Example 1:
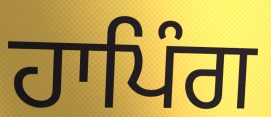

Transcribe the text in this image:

ਹਾਪਿੰਗ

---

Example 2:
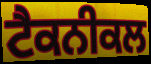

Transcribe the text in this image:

ਟੈਕਨੀਕਲ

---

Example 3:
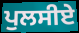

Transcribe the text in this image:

ਪੁਲਸੀਏ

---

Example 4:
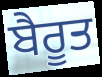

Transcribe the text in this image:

ਬੈਰੂਤ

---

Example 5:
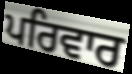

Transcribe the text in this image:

ਪਰਿਵਾਰ